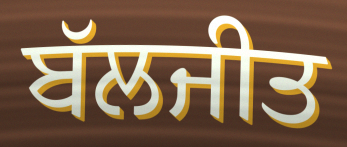
ਬੱਲਜੀਤ